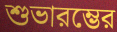
শুভারম্ভের